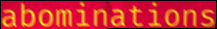
abominations